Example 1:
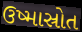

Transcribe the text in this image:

ઉષ્માસ્રોત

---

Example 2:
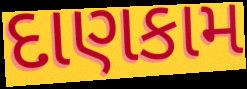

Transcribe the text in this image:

દાણકામ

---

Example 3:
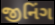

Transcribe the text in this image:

જીનિંગ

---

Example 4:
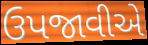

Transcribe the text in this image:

ઉપજાવીએ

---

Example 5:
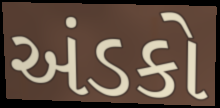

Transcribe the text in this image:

અંડકો